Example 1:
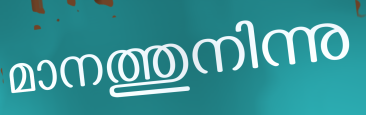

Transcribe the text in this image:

മാനത്തുനിന്നു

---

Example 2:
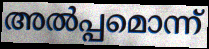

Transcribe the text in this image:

അൽപ്പമൊന്ന്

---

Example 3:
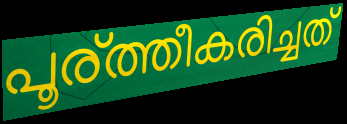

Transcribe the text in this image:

പൂര്ത്തീകരിച്ചത്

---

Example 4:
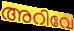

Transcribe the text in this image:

അറിവേ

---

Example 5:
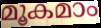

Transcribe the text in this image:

മൂകമാം